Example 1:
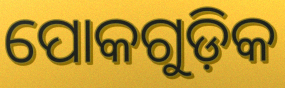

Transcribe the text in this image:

ପୋକଗୁଡ଼ିକ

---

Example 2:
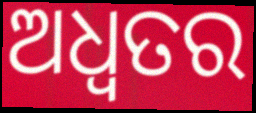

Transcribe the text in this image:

ଅଧ୍ଵତର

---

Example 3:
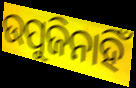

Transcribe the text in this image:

ଉପୁଜିନାହିଁ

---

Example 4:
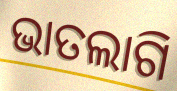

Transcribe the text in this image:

ଭାତଲାଗି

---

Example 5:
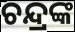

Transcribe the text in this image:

ଚନ୍ଦ୍ରଙ୍କ